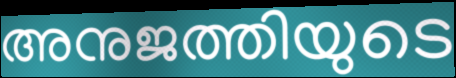
അനുജത്തിയുടെ